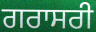
ਗਰਾਸਰੀ